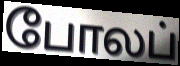
போலப்